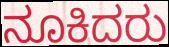
ನೂಕಿದರು